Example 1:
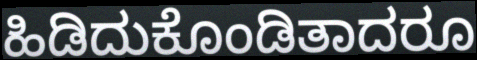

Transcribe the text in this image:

ಹಿಡಿದುಕೊಂಡಿತಾದರೂ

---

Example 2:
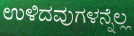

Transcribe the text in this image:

ಉಳಿದವುಗಳನ್ನೆಲ್ಲ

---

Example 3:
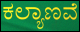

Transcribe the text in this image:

ಕಲ್ಯಾಣವೆ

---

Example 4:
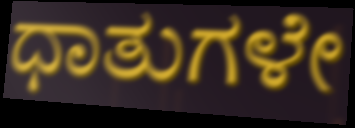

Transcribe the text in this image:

ಧಾತುಗಳೇ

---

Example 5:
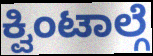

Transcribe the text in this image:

ಕ್ವಿಂಟಾಲ್ಗೆ